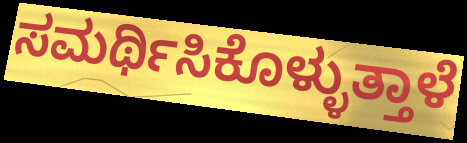
ಸಮರ್ಥಿಸಿಕೊಳ್ಳುತ್ತಾಳೆ